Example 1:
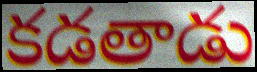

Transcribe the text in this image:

కడతాడు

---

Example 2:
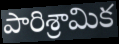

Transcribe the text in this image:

పారిశ్రామిక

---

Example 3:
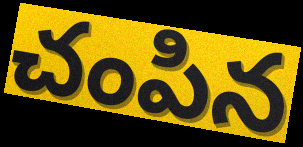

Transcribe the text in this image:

చంపిన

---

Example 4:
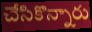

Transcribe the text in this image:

చేసికొన్నారు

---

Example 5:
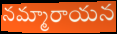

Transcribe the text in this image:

నమ్మారాయన